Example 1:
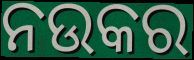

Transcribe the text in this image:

ନଉକର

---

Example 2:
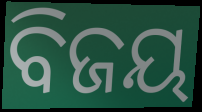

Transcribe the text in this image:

ବିଜୟ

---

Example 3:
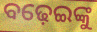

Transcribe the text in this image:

ବଢ଼େଇଙ୍କୁ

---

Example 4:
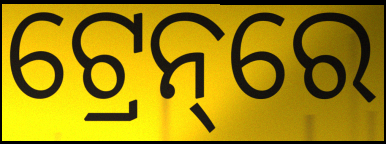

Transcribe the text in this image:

ଟ୍ରେନ୍‌ରେ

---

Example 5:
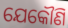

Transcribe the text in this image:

ଯେକୌଣି